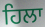
ਹਿਲਾ